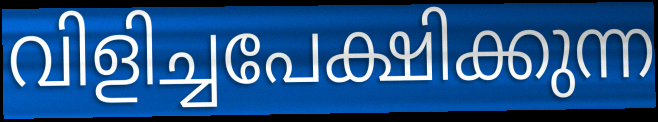
വിളിച്ചപേക്ഷിക്കുന്ന